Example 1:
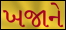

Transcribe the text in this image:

ખજાને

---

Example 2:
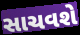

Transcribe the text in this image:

સાચવશે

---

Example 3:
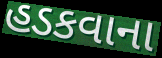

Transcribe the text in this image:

હડકવાના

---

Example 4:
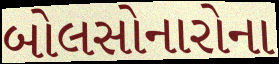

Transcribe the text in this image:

બોલસોનારોના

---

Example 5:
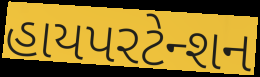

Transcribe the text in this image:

હાયપરટેન્શન